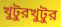
খুটুরখুটুর